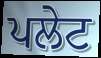
ਪਲੇਟ